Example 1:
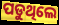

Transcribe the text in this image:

ପଡୁଥିଲେ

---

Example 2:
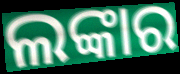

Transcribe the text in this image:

ଲଙ୍କାର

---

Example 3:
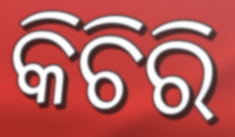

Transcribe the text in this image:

କିଚିରି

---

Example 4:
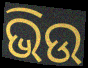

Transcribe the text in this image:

ଭିଉ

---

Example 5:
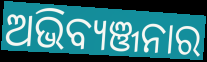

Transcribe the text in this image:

ଅଭିବ୍ୟଞ୍ଜନାର